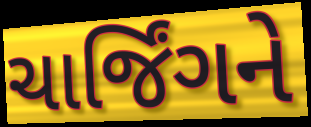
ચાર્જિંગને